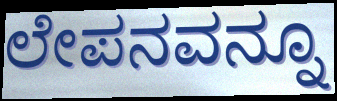
ಲೇಪನವನ್ನೂ